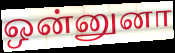
ஒன்னுனா